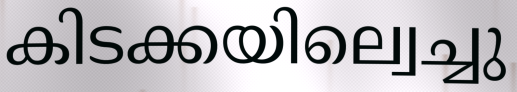
കിടക്കയില്വെച്ചു